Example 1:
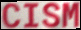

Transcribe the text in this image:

CISM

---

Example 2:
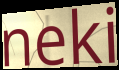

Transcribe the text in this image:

neki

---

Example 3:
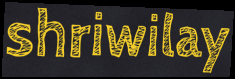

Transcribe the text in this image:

shriwilay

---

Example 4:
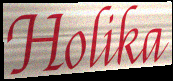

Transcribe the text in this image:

Holika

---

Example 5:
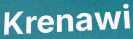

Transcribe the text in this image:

Krenawi